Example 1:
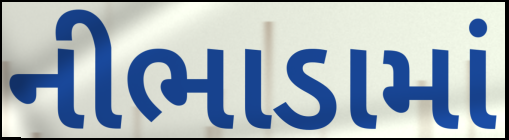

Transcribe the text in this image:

નીભાડામાં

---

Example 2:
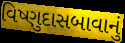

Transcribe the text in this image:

વિષ્ણુદાસબાવાનું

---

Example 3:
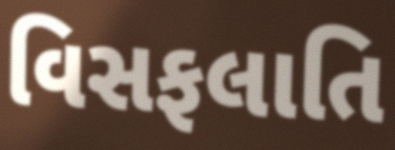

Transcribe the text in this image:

વિસફલાતિ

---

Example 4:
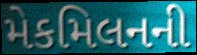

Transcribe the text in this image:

મેકમિલનની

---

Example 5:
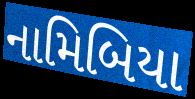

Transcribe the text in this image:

નામિબિયા